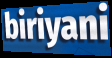
biriyani